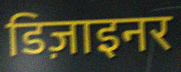
डिज़ाइनर